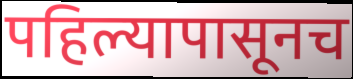
पहिल्यापासूनच